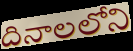
దినాలలోని